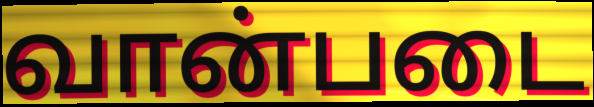
வான்படை